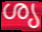
ശ്യ